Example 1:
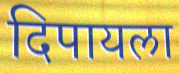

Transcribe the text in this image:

दिपायला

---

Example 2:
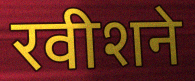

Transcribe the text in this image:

रवीशने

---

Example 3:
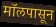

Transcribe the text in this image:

मॉलपासून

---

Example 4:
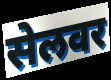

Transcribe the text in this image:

सेलवर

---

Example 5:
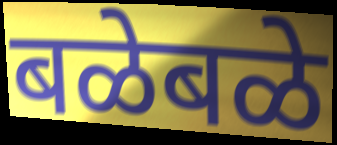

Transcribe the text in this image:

बळेबळे